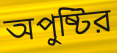
অপুষ্টির